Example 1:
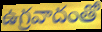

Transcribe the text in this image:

ఉగ్రవాదంతో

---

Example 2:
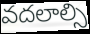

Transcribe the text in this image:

వదలాల్సి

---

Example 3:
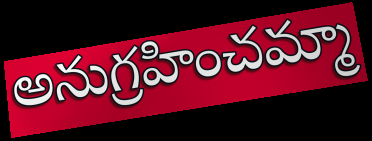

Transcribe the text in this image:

అనుగ్రహించమ్మా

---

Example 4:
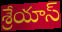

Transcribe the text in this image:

శ్రేయాస్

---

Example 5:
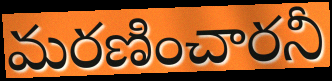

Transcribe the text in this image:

మరణించారనీ